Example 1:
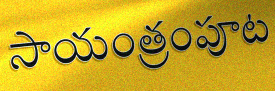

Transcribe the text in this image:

సాయంత్రంపూట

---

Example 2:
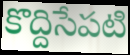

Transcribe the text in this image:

కొద్దిసేపటి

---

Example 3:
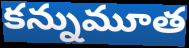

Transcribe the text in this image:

కన్నుమూత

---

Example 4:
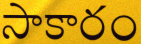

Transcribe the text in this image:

సాకారం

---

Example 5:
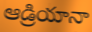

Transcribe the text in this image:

ఆడ్రియానా